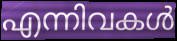
എന്നിവകൾ